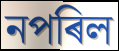
নপৰিল